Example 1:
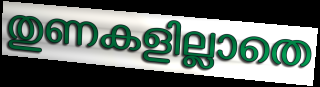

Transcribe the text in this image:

തുണകളില്ലാതെ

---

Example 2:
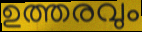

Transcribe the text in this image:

ഉത്തരവും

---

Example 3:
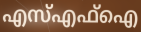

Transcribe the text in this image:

എസ്എഫ്ഐ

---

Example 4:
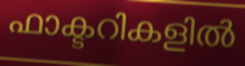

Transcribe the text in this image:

ഫാക്ടറികളിൽ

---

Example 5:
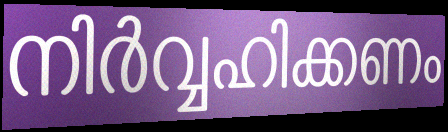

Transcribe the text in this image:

നിർവ്വഹിക്കണം